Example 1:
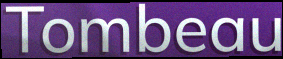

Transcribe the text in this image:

Tombeau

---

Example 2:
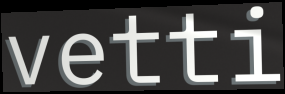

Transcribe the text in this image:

vetti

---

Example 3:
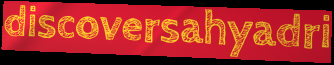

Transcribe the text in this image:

discoversahyadri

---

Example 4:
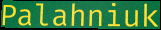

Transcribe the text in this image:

Palahniuk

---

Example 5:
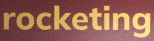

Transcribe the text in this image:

rocketing